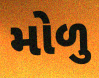
મોળુ